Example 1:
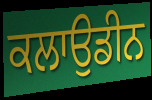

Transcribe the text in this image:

ਕਲਾਉਡੀਨ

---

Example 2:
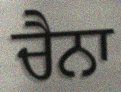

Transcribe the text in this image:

ਚੈਨਾ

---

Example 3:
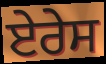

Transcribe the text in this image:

ਏਰੇਸ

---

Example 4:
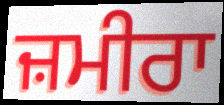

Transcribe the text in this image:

ਜ਼ਮੀਰਾ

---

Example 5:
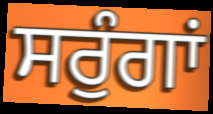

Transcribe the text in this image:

ਸਰੁੰਗਾਂ